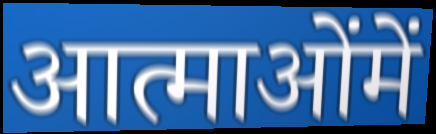
आत्माओंमें